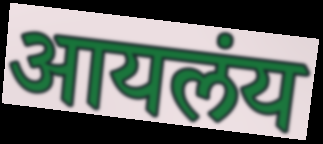
आयलंय